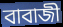
বাবাজী